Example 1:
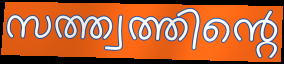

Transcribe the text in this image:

സത്ത്വത്തിന്റെ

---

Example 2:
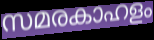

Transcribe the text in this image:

സമരകാഹളം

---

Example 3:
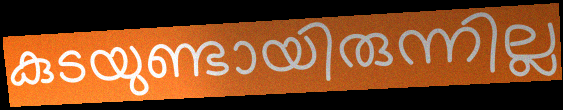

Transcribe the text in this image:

കുടയുണ്ടായിരുന്നില്ല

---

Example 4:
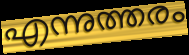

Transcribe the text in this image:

എന്നുത്തരം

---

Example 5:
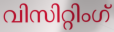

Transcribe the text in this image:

വിസിറ്റിംഗ്